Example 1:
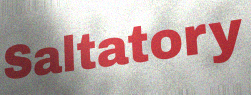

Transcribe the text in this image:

Saltatory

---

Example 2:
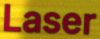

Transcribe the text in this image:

Laser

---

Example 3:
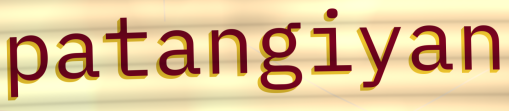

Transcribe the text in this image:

patangiyan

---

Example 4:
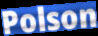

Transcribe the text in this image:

Polson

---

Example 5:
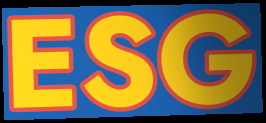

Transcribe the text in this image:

ESG